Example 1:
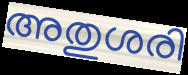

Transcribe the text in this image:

അതുശരി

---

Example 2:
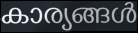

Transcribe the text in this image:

കാര്യങ്ങൾ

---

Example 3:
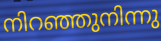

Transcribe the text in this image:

നിറഞ്ഞുനിന്നു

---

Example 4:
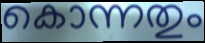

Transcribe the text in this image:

കൊന്നതും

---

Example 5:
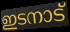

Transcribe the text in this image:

ഇടനാട്